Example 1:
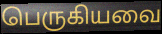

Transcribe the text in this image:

பெருகியவை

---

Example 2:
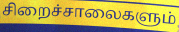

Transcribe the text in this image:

சிறைச்சாலைகளும்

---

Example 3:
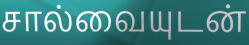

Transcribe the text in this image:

சால்வையுடன்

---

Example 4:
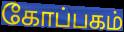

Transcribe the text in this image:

கோப்பகம்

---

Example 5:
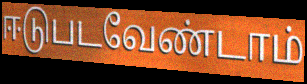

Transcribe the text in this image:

ஈடுபடவேண்டாம்